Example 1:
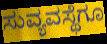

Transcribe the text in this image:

ಸುವ್ಯವಸ್ಥೆಗೂ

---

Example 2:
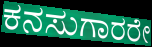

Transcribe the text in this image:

ಕನಸುಗಾರರೇ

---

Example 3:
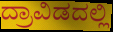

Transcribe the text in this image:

ದ್ರಾವಿಡದಲ್ಲಿ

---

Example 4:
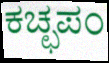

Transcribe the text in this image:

ಕಚ್ಛಪಂ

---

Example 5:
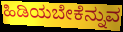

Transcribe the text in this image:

ಹಿಡಿಯಬೇಕೆನ್ನುವ